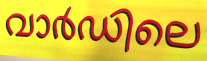
വാർഡിലെ